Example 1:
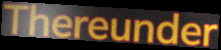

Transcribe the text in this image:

Thereunder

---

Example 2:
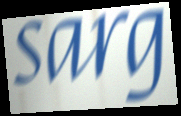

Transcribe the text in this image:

sarg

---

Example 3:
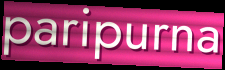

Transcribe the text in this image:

paripurna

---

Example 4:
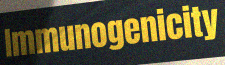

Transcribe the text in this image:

Immunogenicity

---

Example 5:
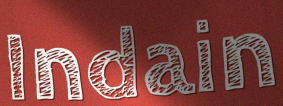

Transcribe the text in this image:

Indain